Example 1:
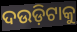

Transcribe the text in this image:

ଦଉଡ଼ିଟାକୁ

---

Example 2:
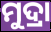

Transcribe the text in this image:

ମୁଦ୍ରା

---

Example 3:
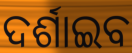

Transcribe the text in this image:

ଦର୍ଶାଇବ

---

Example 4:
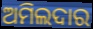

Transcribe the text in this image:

ଅମିଲଦାର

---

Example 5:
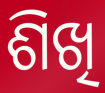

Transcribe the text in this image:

ଶିଖି